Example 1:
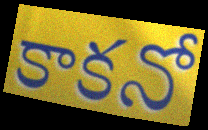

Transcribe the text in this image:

కాకనో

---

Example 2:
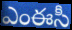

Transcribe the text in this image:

ఎంఈసీ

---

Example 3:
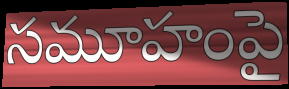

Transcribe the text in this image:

సమూహంపై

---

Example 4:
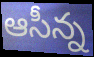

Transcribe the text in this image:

ఆసీన్న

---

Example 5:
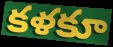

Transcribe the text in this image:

కళకూ